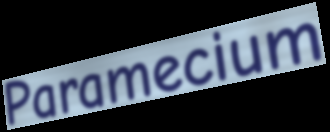
Paramecium